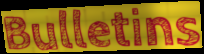
Bulletins